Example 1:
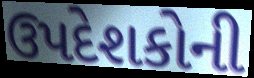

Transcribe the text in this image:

ઉપદેશકોની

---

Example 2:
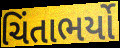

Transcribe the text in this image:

ચિંતાભર્યો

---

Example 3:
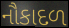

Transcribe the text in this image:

નૌકાદળ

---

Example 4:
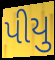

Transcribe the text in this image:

પીયુ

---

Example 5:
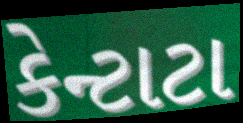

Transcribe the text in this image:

કેન્ટાટા